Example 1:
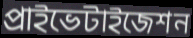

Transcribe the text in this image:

প্রাইভেটাইজেশন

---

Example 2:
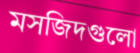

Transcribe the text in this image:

মসজিদগুলো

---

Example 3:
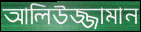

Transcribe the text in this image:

আলিউজ্জামান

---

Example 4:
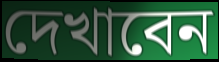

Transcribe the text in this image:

দেখাবেন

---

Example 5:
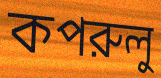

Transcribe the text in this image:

কপরুলু